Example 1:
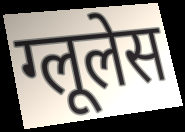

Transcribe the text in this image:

ग्लूलेस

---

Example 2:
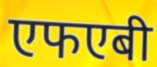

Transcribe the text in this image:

एफएबी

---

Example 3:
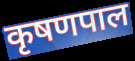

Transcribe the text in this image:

कृषणपाल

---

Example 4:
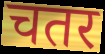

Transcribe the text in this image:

चतर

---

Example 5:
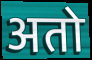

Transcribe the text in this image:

अतो